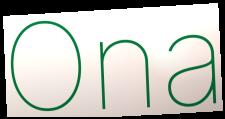
Ona